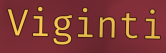
Viginti